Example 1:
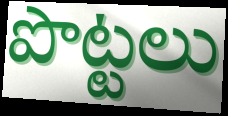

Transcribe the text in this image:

పొట్టలు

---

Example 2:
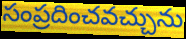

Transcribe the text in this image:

సంప్రదించవచ్చును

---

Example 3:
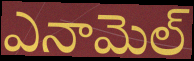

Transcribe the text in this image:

ఎనామెల్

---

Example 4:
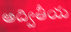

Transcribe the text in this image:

అద్వితీయ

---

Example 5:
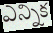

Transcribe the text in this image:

ఎన్నిక